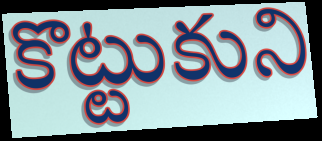
కొట్టుకుని